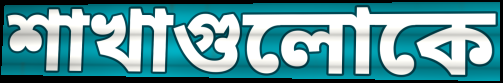
শাখাগুলোকে